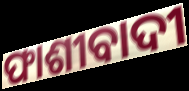
ଫାଶୀବାଦୀ